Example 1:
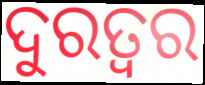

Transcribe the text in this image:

ଦୁରତ୍ଵର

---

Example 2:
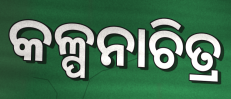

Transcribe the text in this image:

କଳ୍ପନାଚିତ୍ର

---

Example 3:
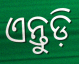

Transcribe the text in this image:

ଏନ୍ତୁଡ଼ି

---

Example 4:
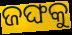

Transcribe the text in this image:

ଜଙ୍ଘକୁ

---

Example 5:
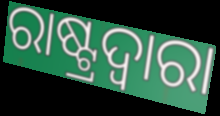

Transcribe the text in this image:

ରାଷ୍ଟ୍ରଦ୍ଵାରା